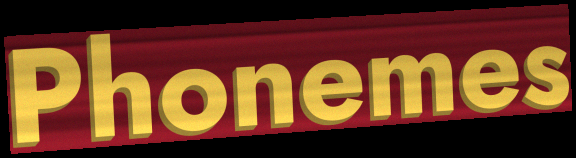
Phonemes